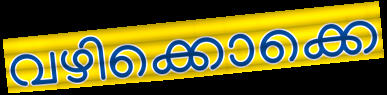
വഴിക്കൊക്കെ